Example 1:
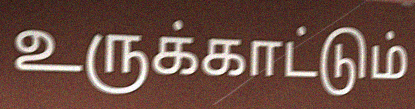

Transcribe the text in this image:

உருக்காட்டும்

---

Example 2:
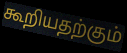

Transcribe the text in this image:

கூறியதற்கும்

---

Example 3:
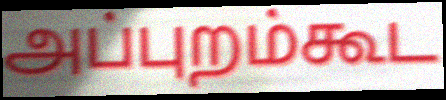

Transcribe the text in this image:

அப்புறம்கூட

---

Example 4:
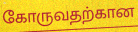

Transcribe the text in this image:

கோருவதற்கான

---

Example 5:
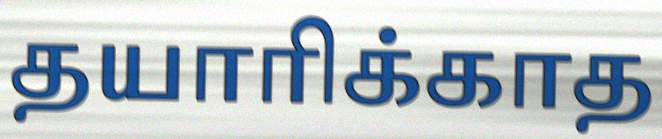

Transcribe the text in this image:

தயாரிக்காத